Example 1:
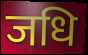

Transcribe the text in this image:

जधि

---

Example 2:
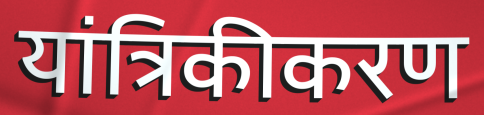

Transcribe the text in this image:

यांत्रिकीकरण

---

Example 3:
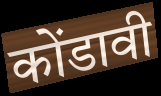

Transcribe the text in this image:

कोंडावी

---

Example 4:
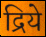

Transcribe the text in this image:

द्रिये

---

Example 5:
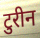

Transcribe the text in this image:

टुरीन